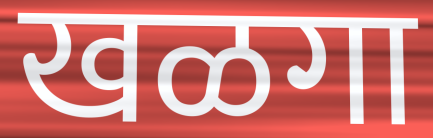
खळगा